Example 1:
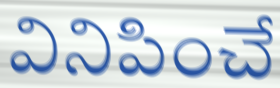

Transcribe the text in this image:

వినిపించే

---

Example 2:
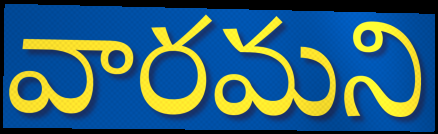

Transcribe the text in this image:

వారమని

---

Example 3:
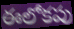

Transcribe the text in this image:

ఈలోకపు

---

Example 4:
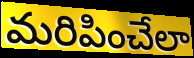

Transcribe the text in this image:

మరిపించేలా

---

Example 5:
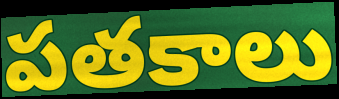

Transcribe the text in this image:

పతకాలు